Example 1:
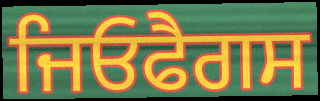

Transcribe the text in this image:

ਜਿਓਫੈਗਸ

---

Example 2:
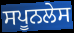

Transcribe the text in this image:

ਸਪੂਨਲੇਸ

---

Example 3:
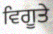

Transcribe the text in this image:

ਵਿਗੂਤੇ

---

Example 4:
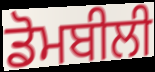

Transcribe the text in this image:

ਡੋਮਬੀਲੀ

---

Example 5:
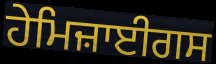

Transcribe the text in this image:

ਹੇਮਿਜ਼ਾਈਗਸ